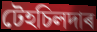
টেহচিলদাৰ